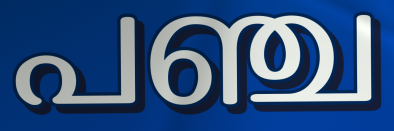
പഞ്ച